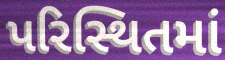
પરિસ્થિતમાં